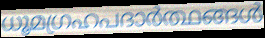
ധൂമഗ്രഹപദാർത്ഥങ്ങൾ